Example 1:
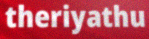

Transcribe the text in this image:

theriyathu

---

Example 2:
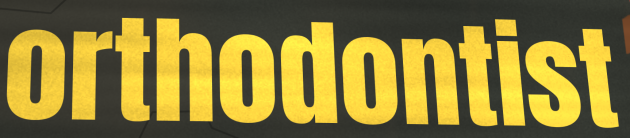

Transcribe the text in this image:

orthodontist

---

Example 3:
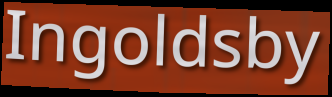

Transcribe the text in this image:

Ingoldsby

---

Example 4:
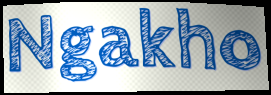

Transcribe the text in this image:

Ngakho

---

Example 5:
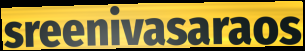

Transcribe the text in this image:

sreenivasaraos